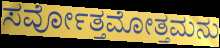
ಸರ್ವೋತ್ತಮೋತ್ತಮನು